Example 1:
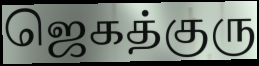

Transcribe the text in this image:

ஜெகத்குரு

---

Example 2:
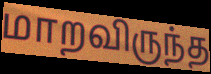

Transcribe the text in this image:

மாறவிருந்த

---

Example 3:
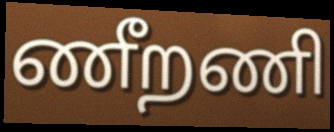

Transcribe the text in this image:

ணீறணி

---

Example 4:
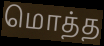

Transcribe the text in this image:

மொத்த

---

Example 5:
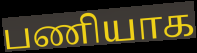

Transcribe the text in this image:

பணியாக